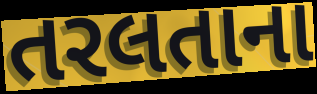
તરલતાના